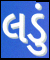
લડું